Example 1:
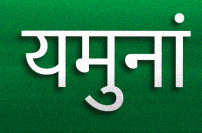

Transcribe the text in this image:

यमुनां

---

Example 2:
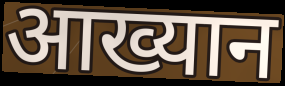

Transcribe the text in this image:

आख्यान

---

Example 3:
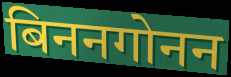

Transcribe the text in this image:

बिननगोनन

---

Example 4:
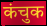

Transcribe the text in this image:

कंचुक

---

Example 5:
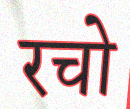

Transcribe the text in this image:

रचो